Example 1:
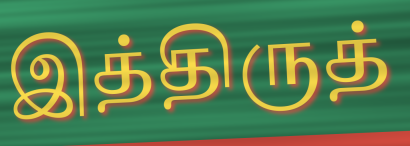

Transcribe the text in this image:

இத்திருத்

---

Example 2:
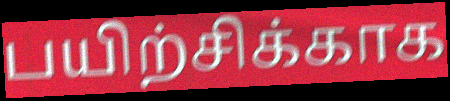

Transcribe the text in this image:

பயிற்சிக்காக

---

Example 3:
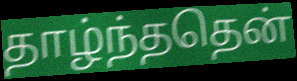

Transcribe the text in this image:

தாழ்ந்ததென்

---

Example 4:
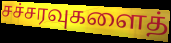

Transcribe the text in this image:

சச்சரவுகளைத்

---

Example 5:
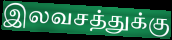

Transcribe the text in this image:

இலவசத்துக்கு